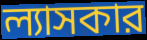
ল্যাসকার